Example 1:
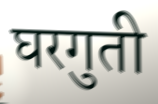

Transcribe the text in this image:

घरगुती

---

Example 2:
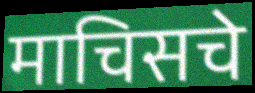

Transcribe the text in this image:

माचिसचे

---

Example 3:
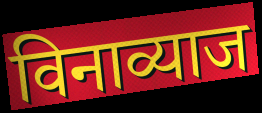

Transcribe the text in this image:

विनाव्याज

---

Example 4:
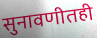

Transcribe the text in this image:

सुनावणीतही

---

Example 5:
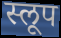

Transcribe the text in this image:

स्लूप